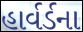
હાર્વર્ડના